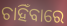
ଚାହିଁବାରେ